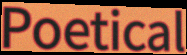
Poetical